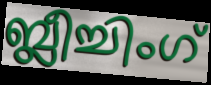
ബ്ലീച്ചിംഗ്